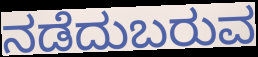
ನಡೆದುಬರುವ